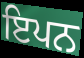
ਇਪਨ